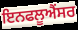
ਇਨਫਲੂਐਂਸਰ